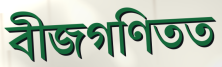
বীজগণিতত